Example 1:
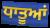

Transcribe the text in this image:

ਧਾਤੂਆਂ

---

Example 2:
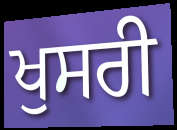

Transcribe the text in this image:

ਖੁਸਰੀ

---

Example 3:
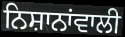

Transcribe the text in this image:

ਨਿਸ਼ਾਨਾਂਵਾਲੀ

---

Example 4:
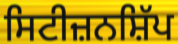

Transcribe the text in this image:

ਸਿਟੀਜ਼ਨਸ਼ਿੱਪ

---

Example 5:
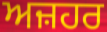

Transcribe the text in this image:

ਅਜ਼ਹਰ